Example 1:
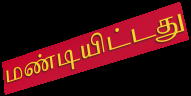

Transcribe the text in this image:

மண்டியிட்டது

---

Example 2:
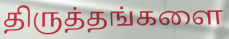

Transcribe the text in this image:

திருத்தங்களை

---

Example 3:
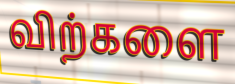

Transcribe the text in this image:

விற்களை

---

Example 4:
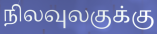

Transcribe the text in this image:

நிலவுலகுக்கு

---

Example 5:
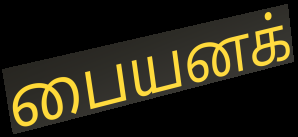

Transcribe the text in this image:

பையனக்